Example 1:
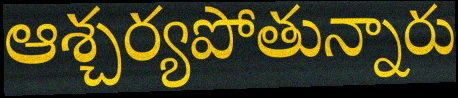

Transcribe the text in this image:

ఆశ్చర్యపోతున్నారు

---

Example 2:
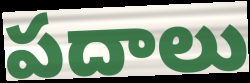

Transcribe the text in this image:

పదాలు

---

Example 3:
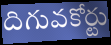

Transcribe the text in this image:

దిగువకోర్టు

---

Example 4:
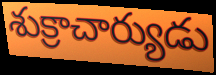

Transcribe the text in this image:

శుక్రాచార్యుడు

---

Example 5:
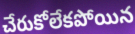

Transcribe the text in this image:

చేరుకోలేకపోయిన